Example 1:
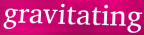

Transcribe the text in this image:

gravitating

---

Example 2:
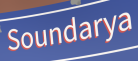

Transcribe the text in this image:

Soundarya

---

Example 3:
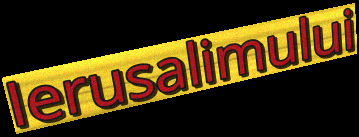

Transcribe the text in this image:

Ierusalimului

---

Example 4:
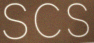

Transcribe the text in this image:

scs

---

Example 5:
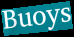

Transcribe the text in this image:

Buoys